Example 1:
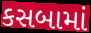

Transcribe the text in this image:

કસબામાં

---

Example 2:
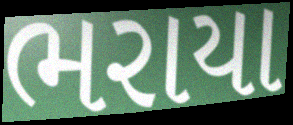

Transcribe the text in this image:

ભરાયા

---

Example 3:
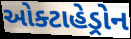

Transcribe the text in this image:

ઓક્ટાહેડ્રોન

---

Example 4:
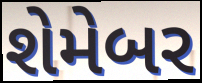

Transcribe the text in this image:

શેમેબર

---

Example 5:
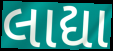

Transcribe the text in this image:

લાદ્યા